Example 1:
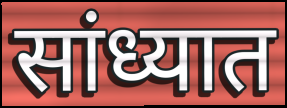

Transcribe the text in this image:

सांध्यात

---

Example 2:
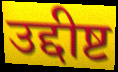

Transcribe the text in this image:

उद्दीष्ट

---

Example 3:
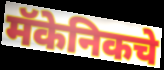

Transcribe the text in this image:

मॅकेनिकचे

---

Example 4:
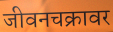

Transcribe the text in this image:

जीवनचक्रावर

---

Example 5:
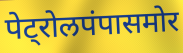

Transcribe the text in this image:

पेट्रोलपंपासमोर